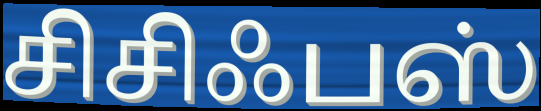
சிசிஃபஸ்